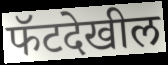
फॅटदेखील